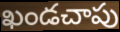
ఖండచాపు